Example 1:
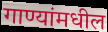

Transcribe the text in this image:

गाण्यांमधील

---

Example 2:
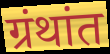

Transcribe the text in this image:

ग्रंथांत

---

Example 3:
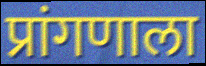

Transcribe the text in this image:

प्रांगणाला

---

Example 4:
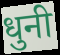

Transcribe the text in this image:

धुनी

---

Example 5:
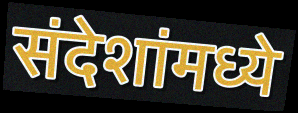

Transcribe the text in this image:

संदेशांमध्ये